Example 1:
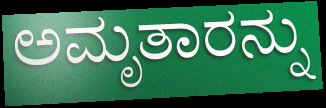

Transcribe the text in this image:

ಅಮೃತಾರನ್ನು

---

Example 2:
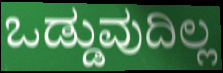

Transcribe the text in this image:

ಒಡ್ಡುವುದಿಲ್ಲ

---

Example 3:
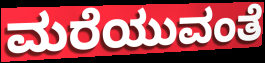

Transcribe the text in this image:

ಮರೆಯುವಂತೆ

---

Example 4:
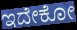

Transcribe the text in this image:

ಇದೇಕೋ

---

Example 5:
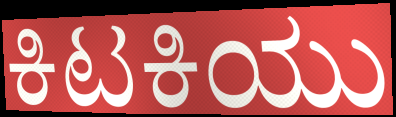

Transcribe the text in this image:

ಕಿಟಕಿಯು